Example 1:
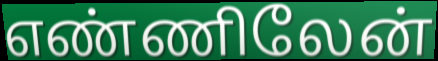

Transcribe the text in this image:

எண்ணிலேன்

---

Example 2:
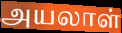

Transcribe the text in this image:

அயலாள்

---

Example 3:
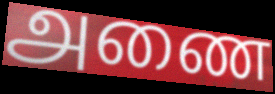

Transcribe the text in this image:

அணை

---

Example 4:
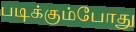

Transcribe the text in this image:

படிக்கும்போது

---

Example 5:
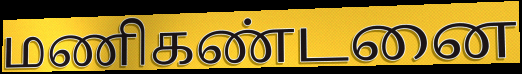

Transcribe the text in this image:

மணிகண்டனை